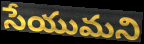
సేయుమని